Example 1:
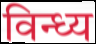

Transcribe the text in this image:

विन्ध्य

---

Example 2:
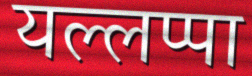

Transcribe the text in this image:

यल्लप्पा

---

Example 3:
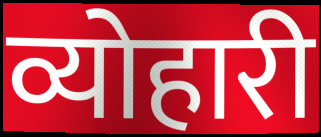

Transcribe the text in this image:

व्योहारी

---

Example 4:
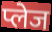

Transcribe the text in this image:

प्‍लेज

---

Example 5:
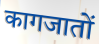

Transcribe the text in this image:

कागजातों